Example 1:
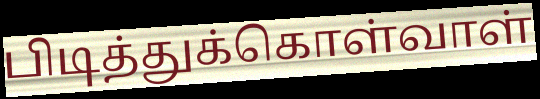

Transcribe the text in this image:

பிடித்துக்கொள்வாள்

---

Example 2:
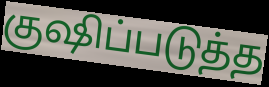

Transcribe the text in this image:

குஷிப்படுத்த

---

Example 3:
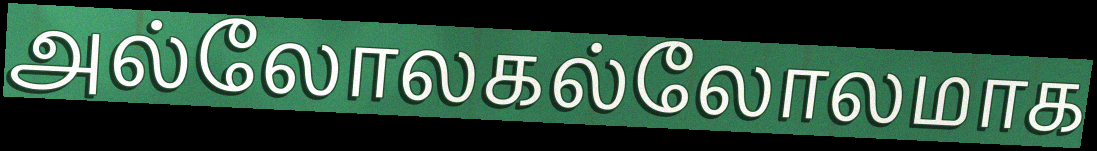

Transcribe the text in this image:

அல்லோலகல்லோலமாக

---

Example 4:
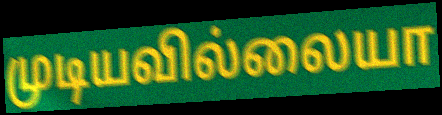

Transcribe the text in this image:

முடியவில்லையா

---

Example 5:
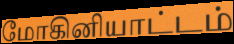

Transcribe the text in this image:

மோகினியாட்டம்